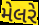
મેલરે